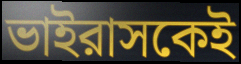
ভাইরাসকেই